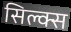
सिल्क्स